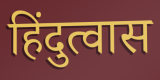
हिंदुत्वास